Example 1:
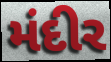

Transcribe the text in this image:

મંદીર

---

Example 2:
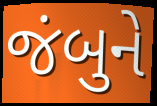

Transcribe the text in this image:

જંબુને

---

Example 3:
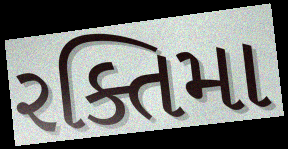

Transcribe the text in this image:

રક્તિમા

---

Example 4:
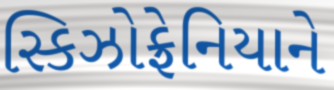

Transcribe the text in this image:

સ્કિઝોફ્રેનિયાને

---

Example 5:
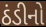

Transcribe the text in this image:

ઠંડીનો